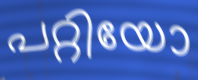
പറ്റിയോ